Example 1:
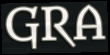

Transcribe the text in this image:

GRA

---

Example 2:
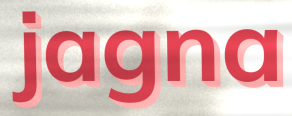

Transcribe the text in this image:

jagna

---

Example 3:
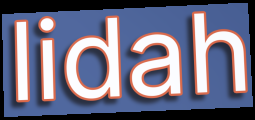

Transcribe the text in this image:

lidah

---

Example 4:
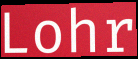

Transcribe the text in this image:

Lohr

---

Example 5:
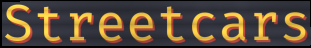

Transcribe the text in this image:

Streetcars